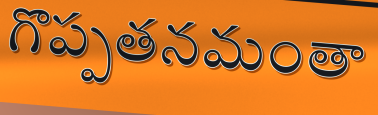
గొప్పతనమంతా